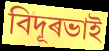
বিদূৰভাই